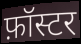
फ़ॉस्टर